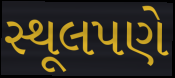
સ્થૂલપણે